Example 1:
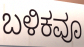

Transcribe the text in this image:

ಬಳಿಕವೂ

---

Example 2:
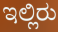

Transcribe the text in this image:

ಇಲ್ಲಿರು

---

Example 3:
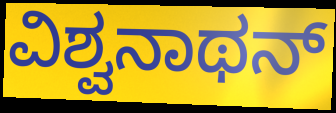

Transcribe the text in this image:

ವಿಶ್ವನಾಥನ್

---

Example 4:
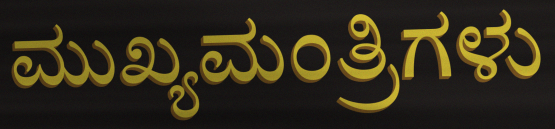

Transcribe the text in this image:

ಮುಖ್ಯಮಂತ್ರಿಗಳು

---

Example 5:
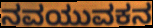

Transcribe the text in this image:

ನವಯುವಕನ